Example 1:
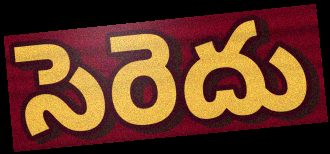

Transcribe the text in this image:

సెరెదు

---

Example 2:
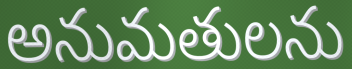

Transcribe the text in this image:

అనుమతులను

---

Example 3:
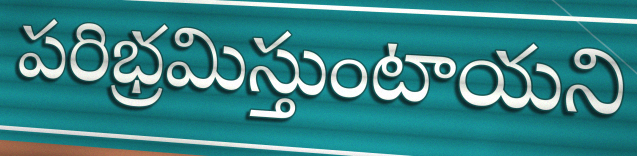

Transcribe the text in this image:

పరిభ్రమిస్తుంటాయని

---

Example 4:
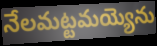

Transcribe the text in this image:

నేలమట్టమయ్యెను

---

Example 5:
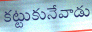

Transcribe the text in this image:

కట్టుకునేవాడు